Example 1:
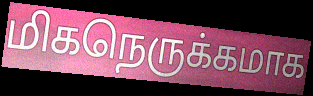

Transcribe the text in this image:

மிகநெருக்கமாக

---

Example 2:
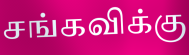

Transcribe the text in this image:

சங்கவிக்கு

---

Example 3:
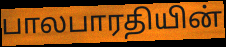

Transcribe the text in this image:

பாலபாரதியின்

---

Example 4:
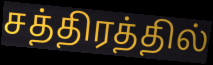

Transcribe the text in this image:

சத்திரத்தில்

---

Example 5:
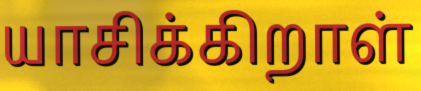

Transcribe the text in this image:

யாசிக்கிறாள்